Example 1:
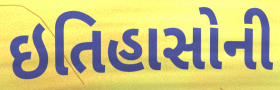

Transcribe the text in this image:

ઇતિહાસોની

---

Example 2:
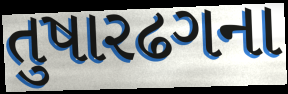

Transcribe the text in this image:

તુષારઢગના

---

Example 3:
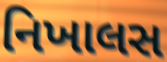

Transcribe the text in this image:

નિખાલસ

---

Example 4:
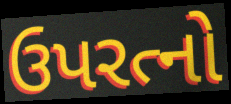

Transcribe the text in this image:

ઉપરત્નો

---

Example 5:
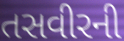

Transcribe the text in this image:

તસવીરની